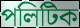
পলিটিক